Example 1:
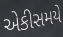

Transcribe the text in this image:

એકીસમયે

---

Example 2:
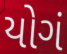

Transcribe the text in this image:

યોગં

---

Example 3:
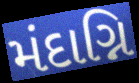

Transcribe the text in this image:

મંદાગ્નિ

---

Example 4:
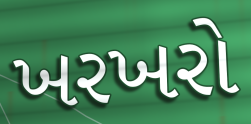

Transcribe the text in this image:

ખરખરો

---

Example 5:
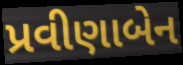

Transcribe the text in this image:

પ્રવીણાબેન